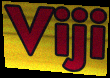
Viji